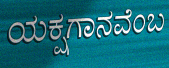
ಯಕ್ಷಗಾನವೆಂಬ